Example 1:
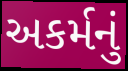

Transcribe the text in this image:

અકર્મનું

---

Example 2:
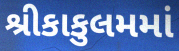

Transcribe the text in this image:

શ્રીકાકુલમમાં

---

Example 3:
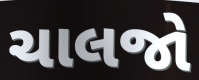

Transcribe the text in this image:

ચાલજો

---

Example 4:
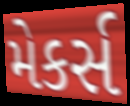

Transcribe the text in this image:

મેકર્સ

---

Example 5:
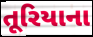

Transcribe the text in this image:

તૂરિયાના